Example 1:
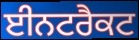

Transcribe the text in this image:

ਈਨਟਰੈਕਟ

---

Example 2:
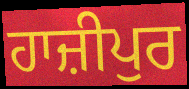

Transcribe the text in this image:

ਹਾਜ਼ੀਪੁਰ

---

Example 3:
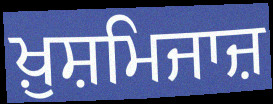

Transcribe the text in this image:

ਖ਼ੁਸ਼ਮਿਜਾਜ਼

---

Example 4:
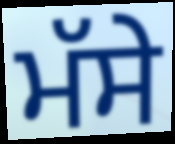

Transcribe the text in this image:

ਮੱਸੇ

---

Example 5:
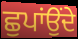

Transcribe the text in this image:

ਛੁਪਾਂਉਂਦੇ